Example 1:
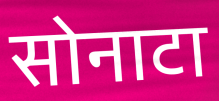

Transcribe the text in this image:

सोनाटा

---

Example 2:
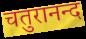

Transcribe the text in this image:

चतुरानन्द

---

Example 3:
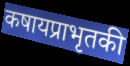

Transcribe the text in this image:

कषायप्राभृतकी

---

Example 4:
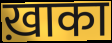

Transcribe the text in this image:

ख़ाका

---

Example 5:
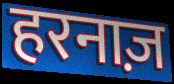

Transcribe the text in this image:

हरनाज़